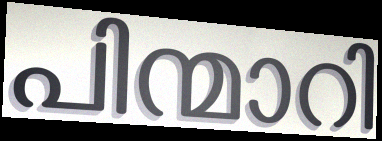
പിന്മാറി